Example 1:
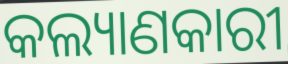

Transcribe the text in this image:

କଲ୍ୟାଣକାରୀ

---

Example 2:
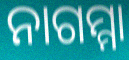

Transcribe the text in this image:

ନାଗମ୍ମା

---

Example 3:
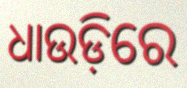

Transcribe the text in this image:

ଧାଉଡ଼ିରେ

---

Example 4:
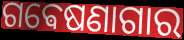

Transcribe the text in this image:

ଗଵେଷଣାଗାର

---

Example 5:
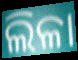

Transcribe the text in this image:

ଲିଳା